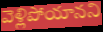
వెళ్లిపోయానని